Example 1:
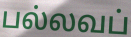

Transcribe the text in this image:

பல்லவப்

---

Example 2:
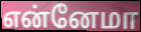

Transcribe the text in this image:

என்னேமா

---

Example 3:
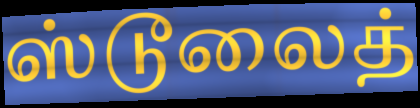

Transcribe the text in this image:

ஸ்டூலைத்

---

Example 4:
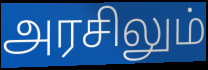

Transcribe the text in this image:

அரசிலும்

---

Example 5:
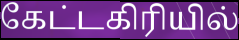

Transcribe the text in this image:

கேட்டகிரியில்